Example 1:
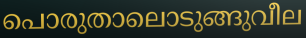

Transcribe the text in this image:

പൊരുതാലൊടുങ്ങുവീല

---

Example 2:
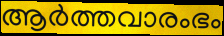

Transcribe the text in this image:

ആർത്തവാരംഭം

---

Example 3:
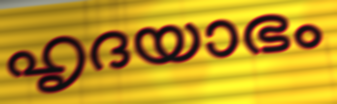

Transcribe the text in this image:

ഹൃദയാഭം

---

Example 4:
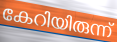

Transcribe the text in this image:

കേറിയിരുന്ന്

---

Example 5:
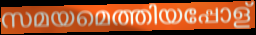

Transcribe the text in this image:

സമയമെത്തിയപ്പോള്